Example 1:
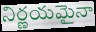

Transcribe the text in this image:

నిర్ణయమైనా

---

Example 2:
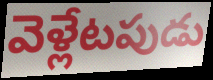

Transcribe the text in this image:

వెళ్లేటపుడు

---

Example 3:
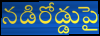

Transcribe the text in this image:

నడిరోడ్డుపై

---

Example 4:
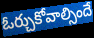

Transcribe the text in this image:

ఓర్చుకోవాల్సిందే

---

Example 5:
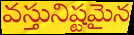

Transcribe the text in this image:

వస్తునిష్టమైన